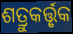
ଶତ୍ରୁକର୍ତ୍ତୃକ